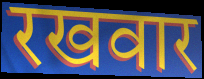
रखवार